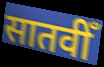
सातवीँ